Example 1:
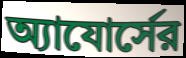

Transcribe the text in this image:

অ্যাযোর্সের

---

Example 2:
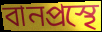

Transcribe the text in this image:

বানপ্রস্থে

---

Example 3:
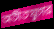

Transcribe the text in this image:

অতীতযুগের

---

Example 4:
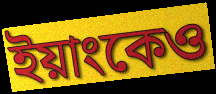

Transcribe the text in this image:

ইয়াংকেও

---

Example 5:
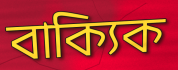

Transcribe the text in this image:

বাক্যিক